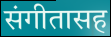
संगीतासह